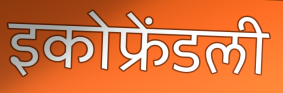
इकोफ्रेंडली